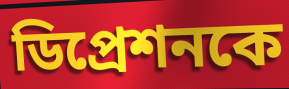
ডিপ্রেশনকে